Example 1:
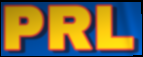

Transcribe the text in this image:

PRL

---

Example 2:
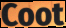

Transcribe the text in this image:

Coot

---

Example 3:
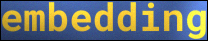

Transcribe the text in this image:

embedding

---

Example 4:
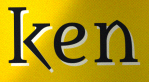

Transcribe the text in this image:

ken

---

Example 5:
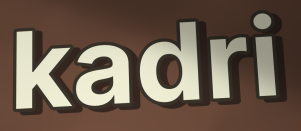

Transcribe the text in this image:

kadri